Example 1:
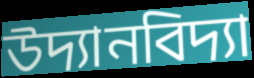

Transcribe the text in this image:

উদ্যানবিদ্যা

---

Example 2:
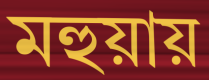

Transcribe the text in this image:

মহুয়ায়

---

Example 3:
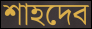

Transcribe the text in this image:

শাহদেব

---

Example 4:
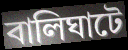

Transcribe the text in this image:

বালিঘাটে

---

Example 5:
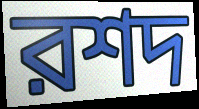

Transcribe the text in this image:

রশদ